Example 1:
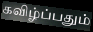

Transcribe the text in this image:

கவிழ்ப்பதும்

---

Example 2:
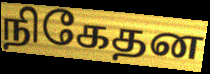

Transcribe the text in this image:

நிகேதன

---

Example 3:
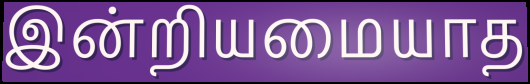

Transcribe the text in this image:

இன்றியமையாத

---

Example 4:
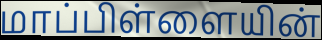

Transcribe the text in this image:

மாப்பிள்ளையின்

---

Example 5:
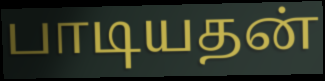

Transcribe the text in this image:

பாடியதன்